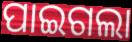
ପାଇଗଲା